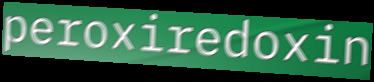
peroxiredoxin